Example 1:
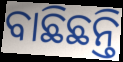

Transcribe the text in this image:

ବାଛିଛନ୍ତି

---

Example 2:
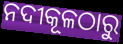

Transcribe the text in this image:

ନଦୀକୂଳଠାରୁ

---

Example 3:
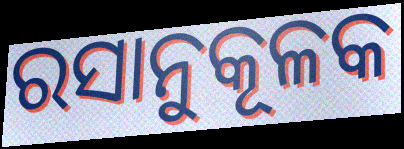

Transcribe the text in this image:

ରସାନୁକୂଳକ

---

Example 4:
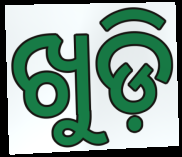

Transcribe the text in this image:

ଖୁଡ଼ି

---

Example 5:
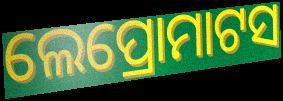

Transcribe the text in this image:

ଲେପ୍ରୋମାଟସ